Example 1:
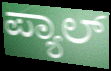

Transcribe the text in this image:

ಪ್ಯಾಲ್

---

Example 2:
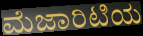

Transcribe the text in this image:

ಮೆಜಾರಿಟಿಯ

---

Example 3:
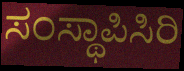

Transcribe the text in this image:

ಸಂಸ್ಥಾಪಿಸಿರಿ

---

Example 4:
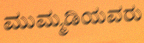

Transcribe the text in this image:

ಮುಮ್ಮಡಿಯವರು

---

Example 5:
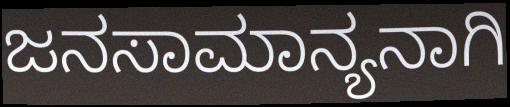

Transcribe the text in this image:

ಜನಸಾಮಾನ್ಯನಾಗಿ